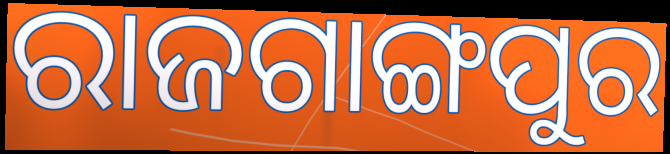
ରାଜଗାଙ୍ଗପୁର